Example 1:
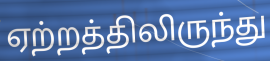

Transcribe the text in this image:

ஏற்றத்திலிருந்து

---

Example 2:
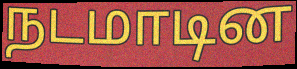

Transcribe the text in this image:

நடமாடின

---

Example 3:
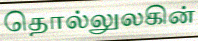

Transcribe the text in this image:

தொல்லுலகின்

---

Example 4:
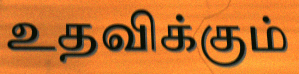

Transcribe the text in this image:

உதவிக்கும்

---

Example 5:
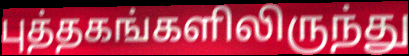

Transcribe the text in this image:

புத்தகங்களிலிருந்து